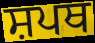
ਸ਼ਪਥ